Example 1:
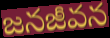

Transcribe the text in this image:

జనజీవన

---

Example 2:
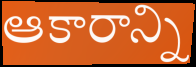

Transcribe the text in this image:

ఆకారాన్ని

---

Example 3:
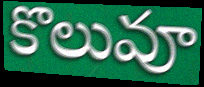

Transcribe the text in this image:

కొలువూ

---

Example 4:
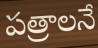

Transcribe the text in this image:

పత్రాలనే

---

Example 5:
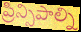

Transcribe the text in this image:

ప్రిన్సిపాల్ని